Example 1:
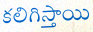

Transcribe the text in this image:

కలిగిస్తాయి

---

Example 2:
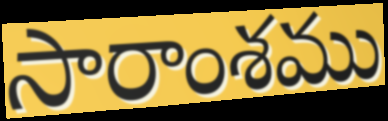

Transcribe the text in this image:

సారాంశము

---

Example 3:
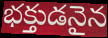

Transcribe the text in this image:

భక్తుడనైన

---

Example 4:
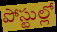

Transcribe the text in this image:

పోస్టుల్లో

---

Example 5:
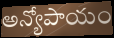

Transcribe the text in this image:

అన్యోపాయం